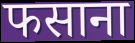
फसाना